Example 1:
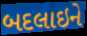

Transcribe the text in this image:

બદલાઇને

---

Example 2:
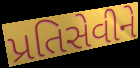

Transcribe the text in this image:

પ્રતિસેવીને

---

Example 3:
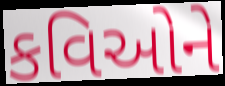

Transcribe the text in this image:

કવિઓને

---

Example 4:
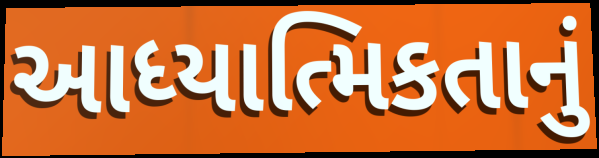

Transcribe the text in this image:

આધ્યાત્મિકતાનું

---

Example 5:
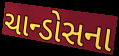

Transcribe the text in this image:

ચાન્ડોસના